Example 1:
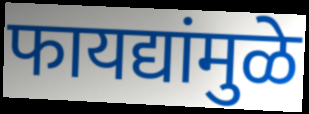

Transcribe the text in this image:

फायद्यांमुळे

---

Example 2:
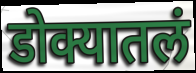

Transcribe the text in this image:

डोक्यातलं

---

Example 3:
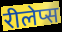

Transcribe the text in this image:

रीलेप्स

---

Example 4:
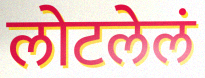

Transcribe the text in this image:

लोटलेलं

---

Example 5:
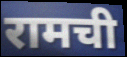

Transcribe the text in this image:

रामची